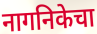
नागनिकेचा